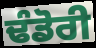
ਢੰਡੋਰੀ